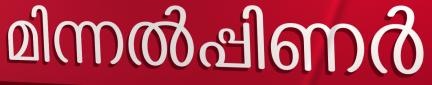
മിന്നൽപ്പിണർ